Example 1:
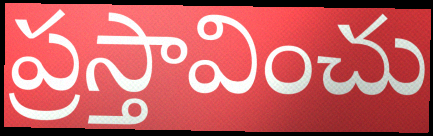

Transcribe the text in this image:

ప్రస్తావించు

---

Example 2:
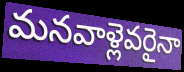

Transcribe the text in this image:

మనవాళ్లెవరైనా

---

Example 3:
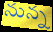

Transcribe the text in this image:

నున్న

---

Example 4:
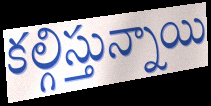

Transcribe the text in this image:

కల్గిస్తున్నాయి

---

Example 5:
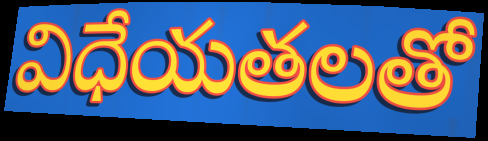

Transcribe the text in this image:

విధేయతలతో